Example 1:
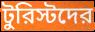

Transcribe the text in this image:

টুরিস্টদের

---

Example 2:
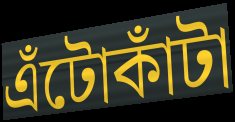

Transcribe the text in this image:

এঁটোকাঁটা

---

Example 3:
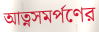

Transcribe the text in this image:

আত্নসমর্পণের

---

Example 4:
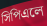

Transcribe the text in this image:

সিপিএলে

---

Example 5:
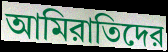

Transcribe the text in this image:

আমিরাতিদের